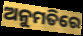
ଅନୁମତିରେ